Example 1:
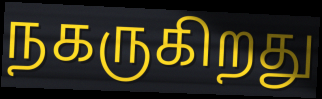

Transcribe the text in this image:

நகருகிறது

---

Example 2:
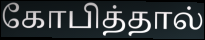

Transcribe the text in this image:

கோபித்தால்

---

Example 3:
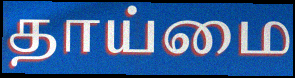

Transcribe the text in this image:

தாய்மை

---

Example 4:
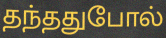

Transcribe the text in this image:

தந்ததுபோல்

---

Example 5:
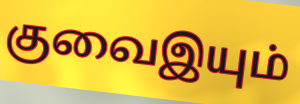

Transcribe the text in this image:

குவைஇயும்